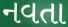
નવતા